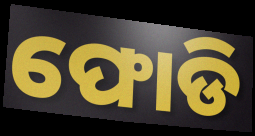
ଫୋଡି